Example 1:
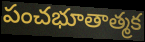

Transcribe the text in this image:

పంచభూతాత్మక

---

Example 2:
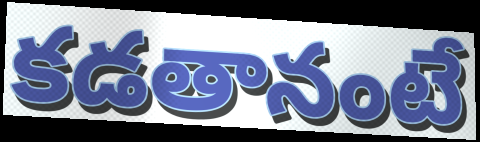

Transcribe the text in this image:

కడతానంటే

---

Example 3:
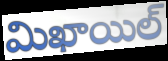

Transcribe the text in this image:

మిఖాయిల్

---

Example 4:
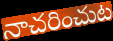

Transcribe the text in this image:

నాచరించుట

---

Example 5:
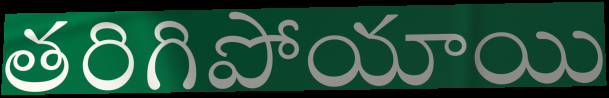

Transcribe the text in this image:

తరిగిపోయాయి